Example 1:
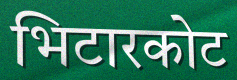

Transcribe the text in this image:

भिटारकोट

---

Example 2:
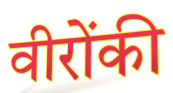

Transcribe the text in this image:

वीरोंकी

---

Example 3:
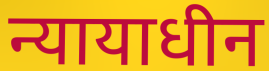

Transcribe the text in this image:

न्यायाधीन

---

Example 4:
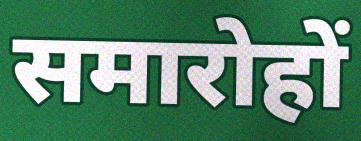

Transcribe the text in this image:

समारोहों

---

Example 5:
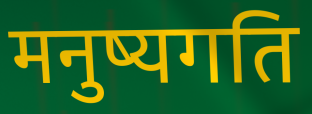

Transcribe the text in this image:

मनुष्यगति